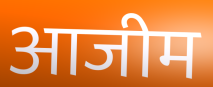
आजीम